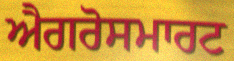
ਐਗਰੋਸਮਾਰਟ